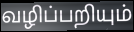
வழிப்பறியும்